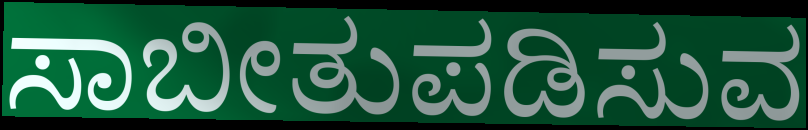
ಸಾಬೀತುಪಡಿಸುವ